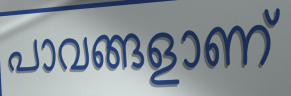
പാവങ്ങളാണ്